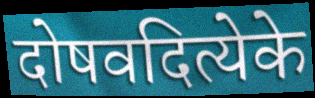
दोषवदित्येके